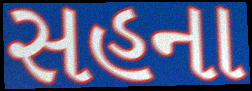
સહના